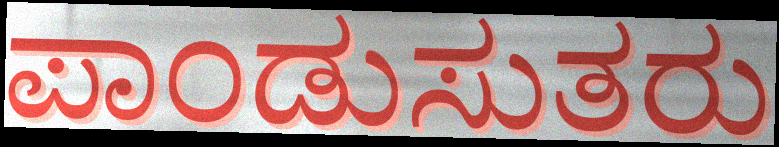
ಪಾಂಡುಸುತರು